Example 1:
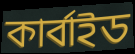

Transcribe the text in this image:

কার্বাইড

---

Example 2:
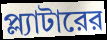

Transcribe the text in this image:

প্ল্যাটারের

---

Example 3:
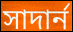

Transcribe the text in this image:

সাদার্ন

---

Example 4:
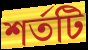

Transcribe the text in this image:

শর্তটি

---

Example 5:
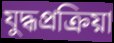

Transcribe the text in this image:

যুদ্ধপ্রক্রিয়া